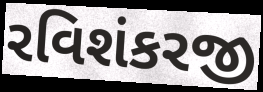
રવિશંકરજી